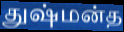
துஷ்மன்த